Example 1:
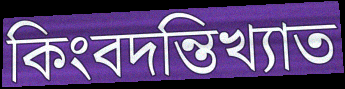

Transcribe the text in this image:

কিংবদন্তিখ্যাত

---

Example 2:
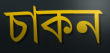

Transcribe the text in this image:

চাকন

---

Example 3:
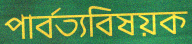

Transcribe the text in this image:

পার্বত্যবিষয়ক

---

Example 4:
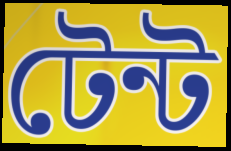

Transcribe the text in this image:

টেন্ট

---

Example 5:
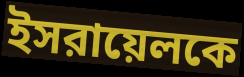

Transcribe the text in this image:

ইসরায়েলকে